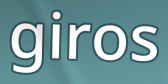
giros